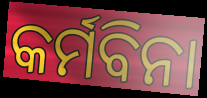
କର୍ମବିନା